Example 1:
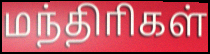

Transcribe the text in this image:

மந்திரிகள்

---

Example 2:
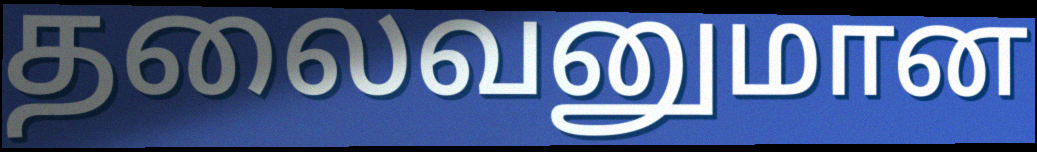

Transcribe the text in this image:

தலைவனுமான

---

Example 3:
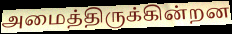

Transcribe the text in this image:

அமைத்திருக்கின்றன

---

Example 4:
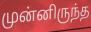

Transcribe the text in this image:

முன்னிருந்த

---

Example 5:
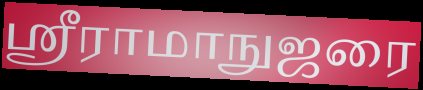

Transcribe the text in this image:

ஸ்ரீராமாநுஜரை